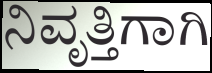
ನಿವೃತ್ತಿಗಾಗಿ